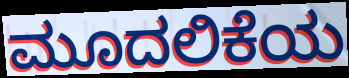
ಮೂದಲಿಕೆಯ